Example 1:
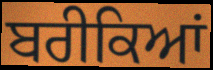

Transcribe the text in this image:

ਬਰੀਕਿਆਂ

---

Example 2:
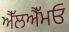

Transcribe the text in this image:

ਐੱਲਐੱਮਓ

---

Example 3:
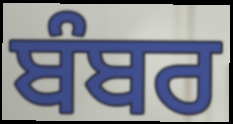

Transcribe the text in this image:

ਬੰਬਰ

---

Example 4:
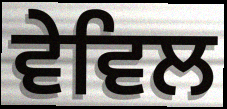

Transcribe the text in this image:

ਵੇਵਿਲ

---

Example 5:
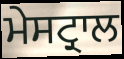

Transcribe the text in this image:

ਮੇਸਟ੍ਰਾਲ